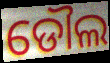
ଡୌଲ